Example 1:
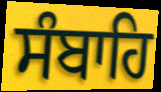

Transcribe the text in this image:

ਸੰਬਾਹਿ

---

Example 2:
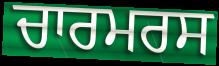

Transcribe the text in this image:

ਚਾਰਮਰਸ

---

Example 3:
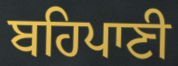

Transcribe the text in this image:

ਬਹਿਪਾਣੀ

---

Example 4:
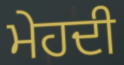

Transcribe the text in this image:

ਮੇਹਦੀ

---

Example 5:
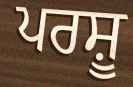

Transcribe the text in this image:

ਪਰਸ਼ੂ